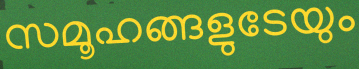
സമൂഹങ്ങളുടേയും